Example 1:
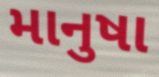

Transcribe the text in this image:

માનુષા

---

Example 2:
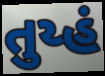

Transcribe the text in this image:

તુય્હં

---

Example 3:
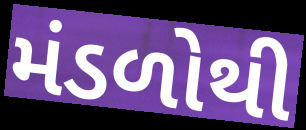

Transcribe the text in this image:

મંડળોથી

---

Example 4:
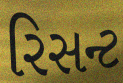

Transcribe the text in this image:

રિસન્ટ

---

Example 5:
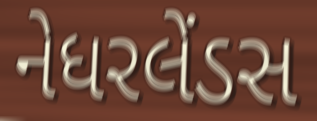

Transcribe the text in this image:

નેધરલેંડસ